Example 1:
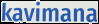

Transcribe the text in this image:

kavimana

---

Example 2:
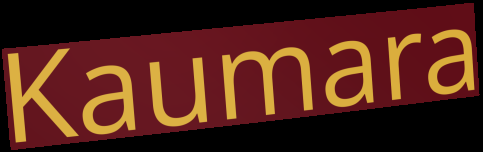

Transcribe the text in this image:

Kaumara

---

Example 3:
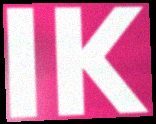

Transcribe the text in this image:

IK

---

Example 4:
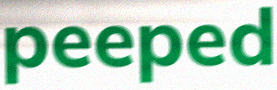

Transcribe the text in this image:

peeped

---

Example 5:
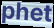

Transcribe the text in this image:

phet